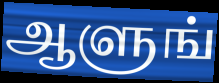
ஆளுங்